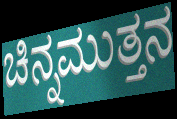
ಚಿನ್ನಮುತ್ತನ